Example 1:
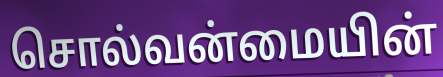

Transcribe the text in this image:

சொல்வன்மையின்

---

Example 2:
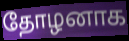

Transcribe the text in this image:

தோழனாக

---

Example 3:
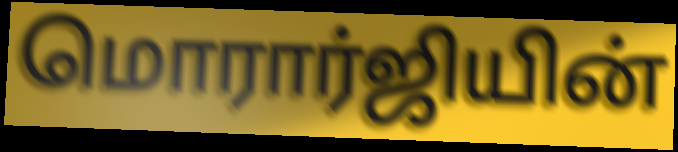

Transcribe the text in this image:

மொரார்ஜியின்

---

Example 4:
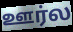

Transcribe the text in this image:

ஊர்ல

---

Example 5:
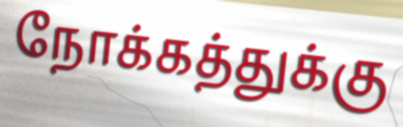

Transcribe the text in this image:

நோக்கத்துக்கு